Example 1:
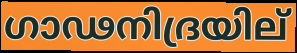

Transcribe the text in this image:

ഗാഢനിദ്രയില്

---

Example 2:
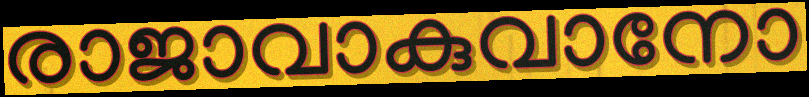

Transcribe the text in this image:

രാജാവാകുവാനോ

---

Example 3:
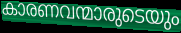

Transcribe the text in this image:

കാരണവന്മാരുടെയും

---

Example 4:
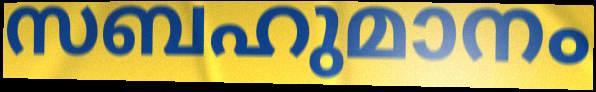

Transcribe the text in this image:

സബഹുമാനം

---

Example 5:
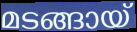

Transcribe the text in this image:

മടങ്ങായ്